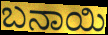
ಬನಾಯಿ